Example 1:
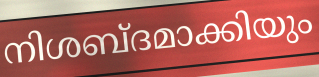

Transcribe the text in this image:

നിശബ്ദമാക്കിയും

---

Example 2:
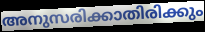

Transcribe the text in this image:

അനുസരിക്കാതിരിക്കും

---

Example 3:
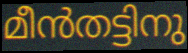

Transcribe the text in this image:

മീൻതട്ടിനു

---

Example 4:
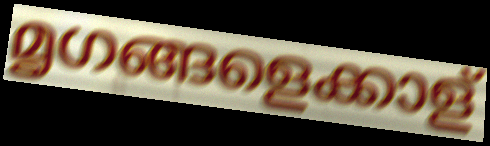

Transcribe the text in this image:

മൃഗങ്ങളെക്കാള്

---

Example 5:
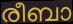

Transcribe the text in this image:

രീബാ